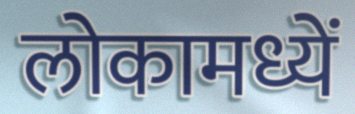
लोकामध्यें